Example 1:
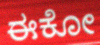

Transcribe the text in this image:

ಈಕೋ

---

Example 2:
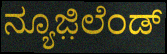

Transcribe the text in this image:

ನ್ಯೂಜ಼ಿಲೆಂಡ್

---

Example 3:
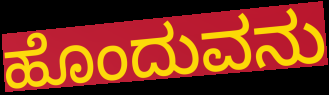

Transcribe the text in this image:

ಹೊಂದುವನು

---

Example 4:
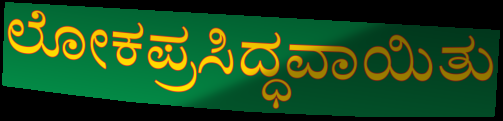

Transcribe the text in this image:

ಲೋಕಪ್ರಸಿದ್ಧವಾಯಿತು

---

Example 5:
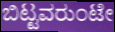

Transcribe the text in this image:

ಬಿಟ್ಟವರುಂಟೇ